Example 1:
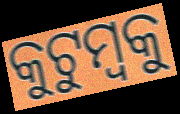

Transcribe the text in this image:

କୁଟୁମ୍ବକୁ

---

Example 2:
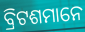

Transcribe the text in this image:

ବ୍ରିଟଶମାନେ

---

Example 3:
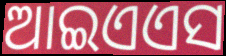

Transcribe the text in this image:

ଆଇଏଏସ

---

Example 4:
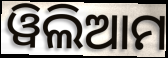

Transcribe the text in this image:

ୱିଲିଆମ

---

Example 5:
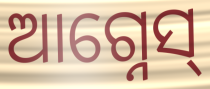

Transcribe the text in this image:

ଆଗ୍ନେସ୍